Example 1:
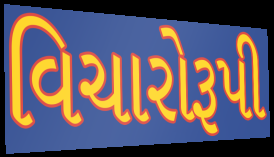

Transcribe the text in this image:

વિચારોરૂપી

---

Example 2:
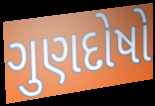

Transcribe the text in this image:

ગુણદોષો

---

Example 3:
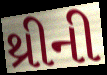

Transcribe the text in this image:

થ્રીની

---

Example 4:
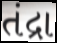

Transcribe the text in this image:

તંદ્રા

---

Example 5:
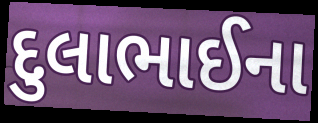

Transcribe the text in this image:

દુલાભાઈના